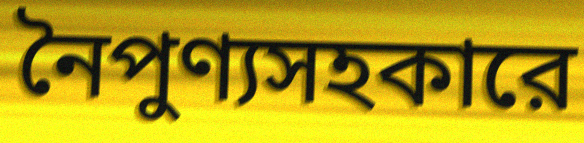
নৈপুণ্যসহকারে